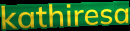
kathiresa